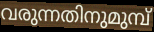
വരുന്നതിനുമുമ്പ്